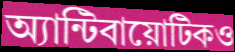
অ্যান্টিবায়োটিকও